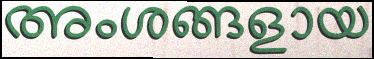
അംശങ്ങളായ